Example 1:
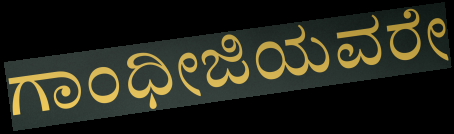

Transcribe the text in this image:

ಗಾಂಧೀಜಿಯವರೇ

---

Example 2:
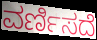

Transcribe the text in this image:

ವರ್ಣಿಸದೆ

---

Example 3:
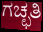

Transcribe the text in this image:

ಗಚ್ಛತಿ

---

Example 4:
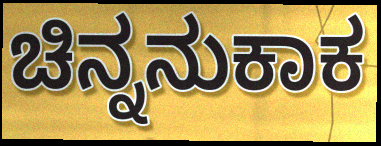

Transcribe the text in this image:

ಚಿನ್ನನುಕಾಕ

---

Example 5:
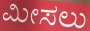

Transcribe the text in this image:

ಮೀಸಲು